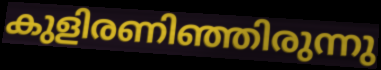
കുളിരണിഞ്ഞിരുന്നു